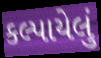
કલ્પાયેલું